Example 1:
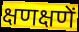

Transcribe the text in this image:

क्षणक्षणें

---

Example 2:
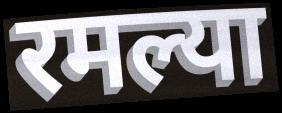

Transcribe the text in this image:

रमल्या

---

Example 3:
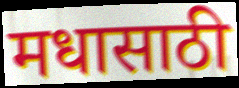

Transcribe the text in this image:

मधासाठी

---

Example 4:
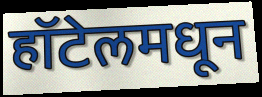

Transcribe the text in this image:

हॉटेलमधून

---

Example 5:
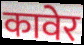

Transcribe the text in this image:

कावेर